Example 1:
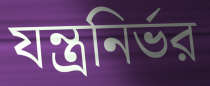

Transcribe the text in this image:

যন্ত্রনির্ভর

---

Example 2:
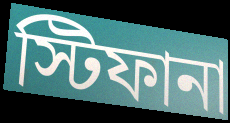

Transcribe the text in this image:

স্টিফানা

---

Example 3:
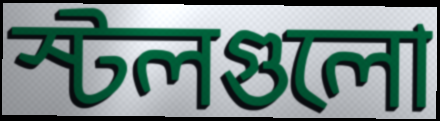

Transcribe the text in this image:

স্টলগুলো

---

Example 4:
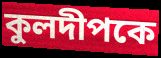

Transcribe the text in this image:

কুলদীপকে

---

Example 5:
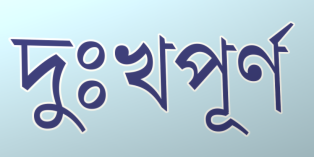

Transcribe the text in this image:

দুঃখপূর্ণ